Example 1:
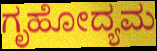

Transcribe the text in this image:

ಗೃಹೋದ್ಯಮ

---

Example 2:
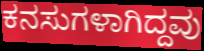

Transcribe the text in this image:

ಕನಸುಗಳಾಗಿದ್ದವು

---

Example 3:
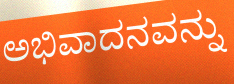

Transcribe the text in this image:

ಅಭಿವಾದನವನ್ನು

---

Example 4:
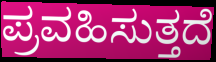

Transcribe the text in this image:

ಪ್ರವಹಿಸುತ್ತದೆ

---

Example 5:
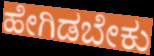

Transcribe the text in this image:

ಹೇಗಿಡಬೇಕು